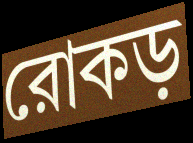
রোকড়